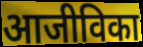
आजीविका